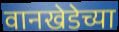
वानखेडेच्या